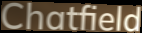
Chatfield